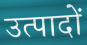
उत्पादों